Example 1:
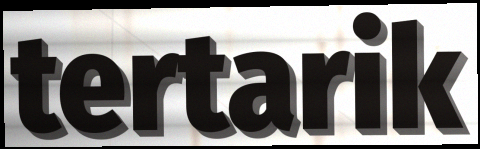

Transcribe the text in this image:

tertarik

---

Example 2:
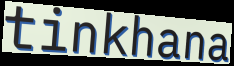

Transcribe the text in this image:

tinkhana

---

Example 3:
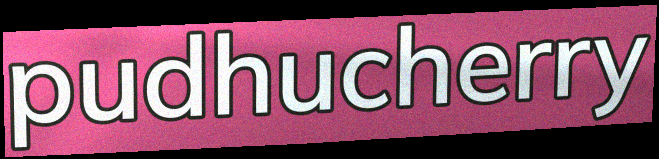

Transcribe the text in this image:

pudhucherry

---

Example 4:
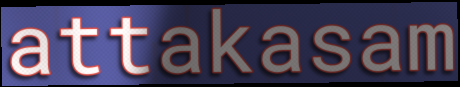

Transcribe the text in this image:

attakasam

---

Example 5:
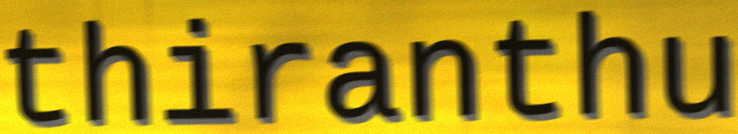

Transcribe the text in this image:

thiranthu